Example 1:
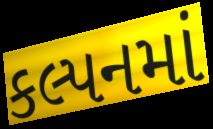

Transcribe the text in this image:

કલ્પનમાં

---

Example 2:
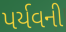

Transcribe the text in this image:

પર્યવની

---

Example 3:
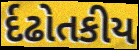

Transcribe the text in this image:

ર્દઢોતકીય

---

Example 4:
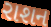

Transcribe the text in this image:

રાશન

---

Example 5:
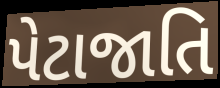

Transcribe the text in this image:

પેટાજાતિ